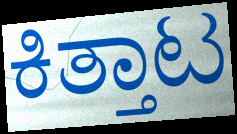
ಕಿತ್ತಾಟ